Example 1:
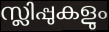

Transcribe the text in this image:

സ്ലിപ്പുകളും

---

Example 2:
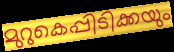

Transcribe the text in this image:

മുറുകെപ്പിടിക്കയും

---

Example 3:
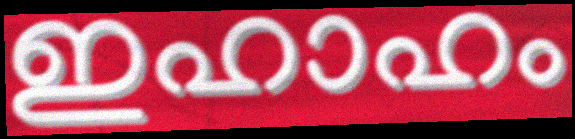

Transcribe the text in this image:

ഇഹാഹം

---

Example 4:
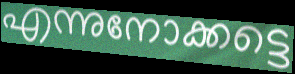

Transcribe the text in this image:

എന്നുനോക്കട്ടെ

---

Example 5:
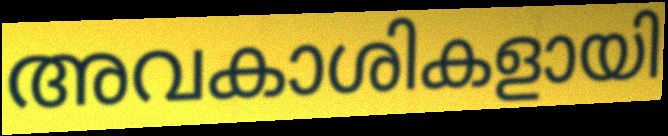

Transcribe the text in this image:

അവകാശികളായി